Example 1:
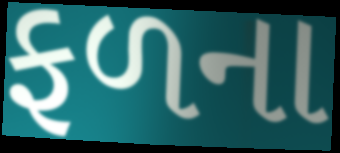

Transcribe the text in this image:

ફળના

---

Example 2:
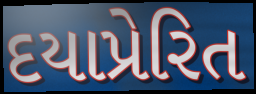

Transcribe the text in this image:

દયાપ્રેરિત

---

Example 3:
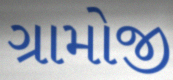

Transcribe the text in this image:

ગ્રામોજી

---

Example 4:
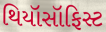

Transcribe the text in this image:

થિયૉસૉફિસ્ટ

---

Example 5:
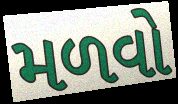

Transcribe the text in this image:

મળવો